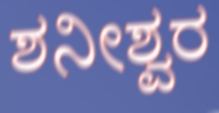
ಶನೀಶ್ವರ